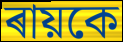
ৰায়কে